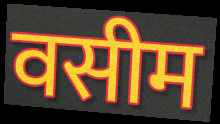
वसीम